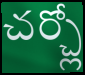
చర్చ్లో